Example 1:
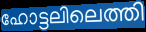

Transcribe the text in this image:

ഹോട്ടലിലെത്തി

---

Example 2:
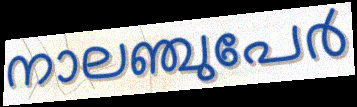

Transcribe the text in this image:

നാലഞ്ചുപേർ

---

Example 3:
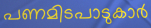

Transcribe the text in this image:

പണമിടപാടുകാർ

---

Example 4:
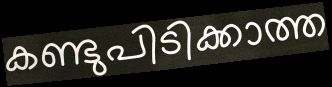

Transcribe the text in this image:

കണ്ടുപിടിക്കാത്ത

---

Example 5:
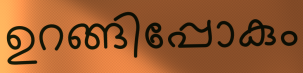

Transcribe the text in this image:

ഉറങ്ങിപ്പോകും